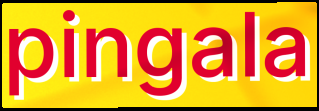
pingala